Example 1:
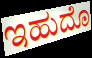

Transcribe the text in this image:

ಇಹುದೊ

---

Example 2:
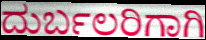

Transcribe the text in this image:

ದುರ್ಬಲರಿಗಾಗಿ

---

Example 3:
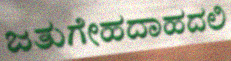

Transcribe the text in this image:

ಜತುಗೇಹದಾಹದಲಿ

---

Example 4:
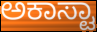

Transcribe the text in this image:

ಅಕಾಸ್ಟಾ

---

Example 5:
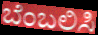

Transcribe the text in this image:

ಬೆಂಬಲಿಸಿ